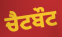
ਚੈਟਬੌਟ